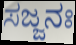
ಸಜ್ಜನಃ